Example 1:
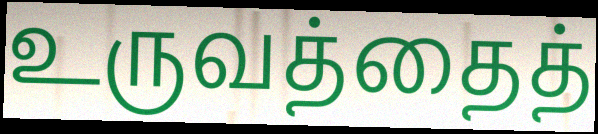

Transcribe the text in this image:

உருவத்தைத்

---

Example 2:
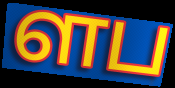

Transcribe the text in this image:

ளப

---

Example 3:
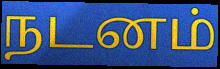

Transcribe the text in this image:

நடனம்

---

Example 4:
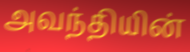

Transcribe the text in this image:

அவந்தியின்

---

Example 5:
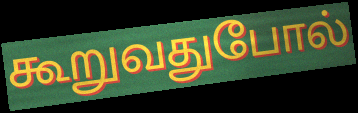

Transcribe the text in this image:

கூறுவதுபோல்